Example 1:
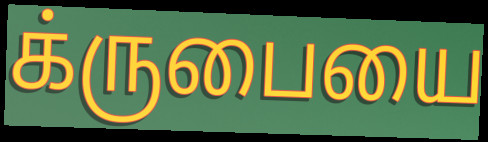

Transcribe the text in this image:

க்ருபையை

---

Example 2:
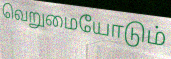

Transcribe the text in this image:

வெறுமையோடும்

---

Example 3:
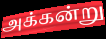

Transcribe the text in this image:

அக்கன்று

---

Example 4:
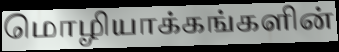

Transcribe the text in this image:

மொழியாக்கங்களின்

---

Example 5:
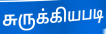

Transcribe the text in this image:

சுருக்கியபடி